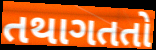
તથાગતતો